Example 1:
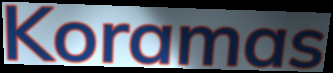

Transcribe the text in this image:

Koramas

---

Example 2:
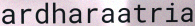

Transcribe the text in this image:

ardharaatria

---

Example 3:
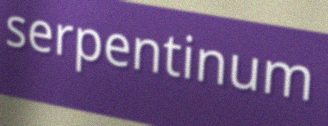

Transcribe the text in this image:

serpentinum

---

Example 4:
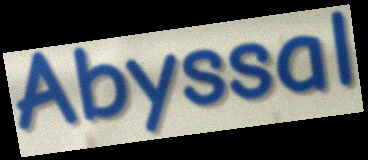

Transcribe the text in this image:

Abyssal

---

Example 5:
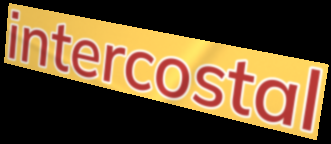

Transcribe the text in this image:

intercostal